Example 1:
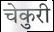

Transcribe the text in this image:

चेकुरी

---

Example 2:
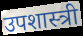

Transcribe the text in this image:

उपशास्त्री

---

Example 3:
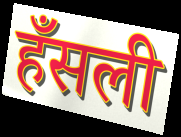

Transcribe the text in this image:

हँसली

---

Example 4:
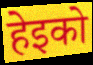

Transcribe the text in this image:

हेइको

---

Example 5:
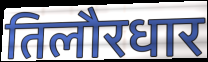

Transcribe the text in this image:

तिलौरधार